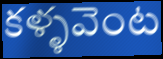
కళ్ళవెంట